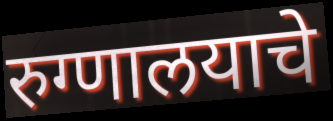
रुग्णालयाचे